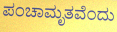
ಪಂಚಾಮೃತವೆಂದು